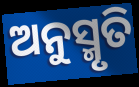
ଅନୁସ୍ମୃତି